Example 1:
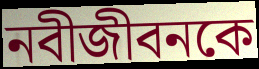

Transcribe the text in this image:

নবীজীবনকে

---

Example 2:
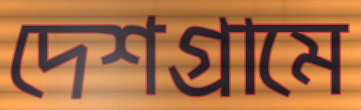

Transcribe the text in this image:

দেশগ্রামে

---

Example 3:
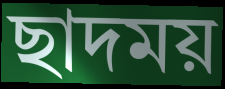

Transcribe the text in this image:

ছাদময়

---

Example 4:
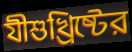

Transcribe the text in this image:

যীশুখ্রিষ্টের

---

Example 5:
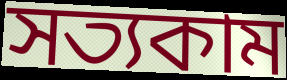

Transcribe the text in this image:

সত্যকাম